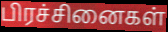
பிரச்சினைகள்